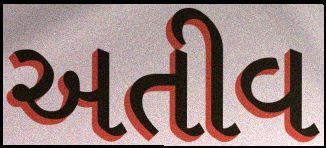
અતીવ